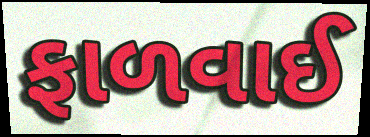
ફાળવાઈ